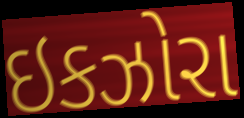
ઇકઝોરા